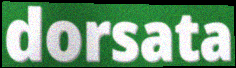
dorsata